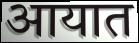
आयात